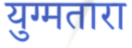
युग्मतारा